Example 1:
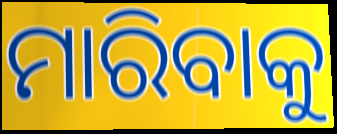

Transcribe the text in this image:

ମାରିବାକୁ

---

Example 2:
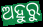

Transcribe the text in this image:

ଅହୁରୁ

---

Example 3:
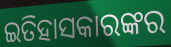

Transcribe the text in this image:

ଇତିହାସକାରଙ୍କର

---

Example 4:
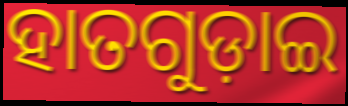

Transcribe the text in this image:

ହାତଗୁଡ଼ାଇ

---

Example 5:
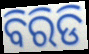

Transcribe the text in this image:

ବିରିଡି